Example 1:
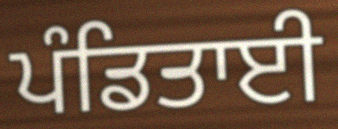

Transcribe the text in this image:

ਪੰਡਿਤਾਈ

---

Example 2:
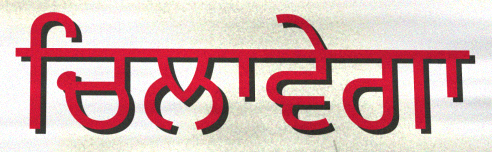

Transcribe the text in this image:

ਚਿਲਾਵੇਗਾ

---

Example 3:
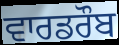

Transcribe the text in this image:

ਵਾਰਡਰੌਬ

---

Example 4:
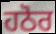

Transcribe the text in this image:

ਹਠੋਰ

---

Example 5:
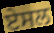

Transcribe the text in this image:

ਏਸਲ